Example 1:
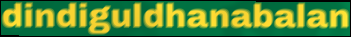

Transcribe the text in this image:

dindiguldhanabalan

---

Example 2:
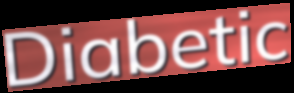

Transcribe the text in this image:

Diabetic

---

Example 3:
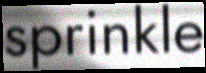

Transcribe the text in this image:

sprinkle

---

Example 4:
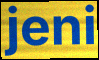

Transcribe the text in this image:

jeni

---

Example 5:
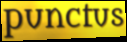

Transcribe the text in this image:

punctus